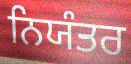
ਨਿਯੰਤਰ